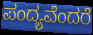
ಪಂದ್ಯವೆಂದರೆ